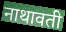
नाथावती